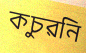
কচুৱনি